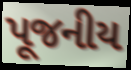
પૂજનીય